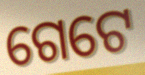
ଗେଟେ